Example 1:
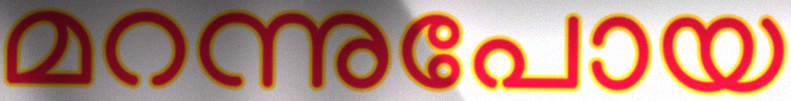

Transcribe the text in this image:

മറന്നുപോയ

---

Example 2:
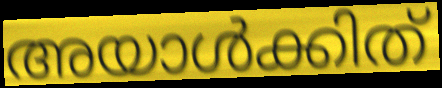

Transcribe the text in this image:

അയാൾക്കിത്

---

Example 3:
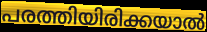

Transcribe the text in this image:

പരത്തിയിരിക്കയാൽ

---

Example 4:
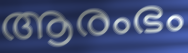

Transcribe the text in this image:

ആരംഭം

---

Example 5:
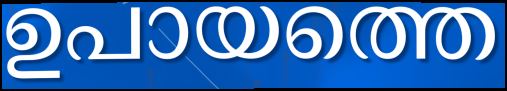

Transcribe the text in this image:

ഉപായത്തെ